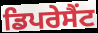
ਡਿਪਰੇਸੈਂਟ